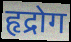
हृद्रोग